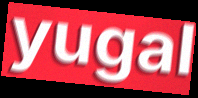
yugal